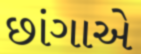
છાંગાએ